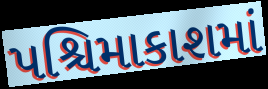
પશ્ચિમાકાશમાં